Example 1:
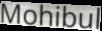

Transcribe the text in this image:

Mohibul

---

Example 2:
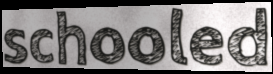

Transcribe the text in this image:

schooled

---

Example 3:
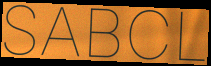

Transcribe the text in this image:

SABCL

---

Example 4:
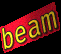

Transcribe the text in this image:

beam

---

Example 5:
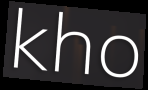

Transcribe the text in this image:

kho